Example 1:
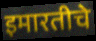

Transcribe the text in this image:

इमारतीचे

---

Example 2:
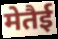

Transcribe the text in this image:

मेतैई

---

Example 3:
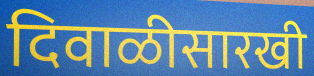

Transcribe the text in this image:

दिवाळीसारखी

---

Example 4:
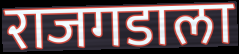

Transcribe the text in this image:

राजगडाला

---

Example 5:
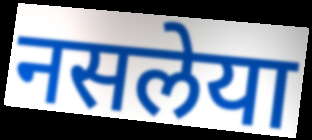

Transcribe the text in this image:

नसलेया